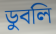
ডুবলি